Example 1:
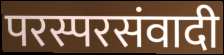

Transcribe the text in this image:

परस्परसंवादी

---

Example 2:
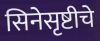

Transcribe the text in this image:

सिनेसृष्टीचे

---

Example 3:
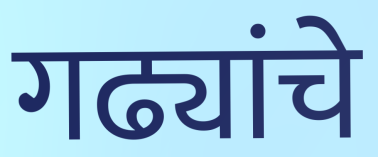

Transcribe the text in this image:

गढ्यांचे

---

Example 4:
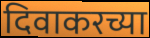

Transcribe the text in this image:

दिवाकरच्या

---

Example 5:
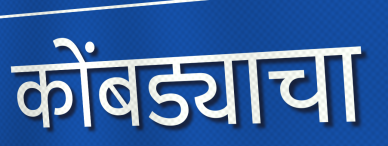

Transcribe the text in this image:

कोंबड्याचा